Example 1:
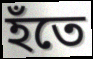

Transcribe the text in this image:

হঁতে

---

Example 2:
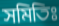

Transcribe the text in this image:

সমিতিঃ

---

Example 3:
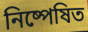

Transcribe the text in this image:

নিষ্পেষিত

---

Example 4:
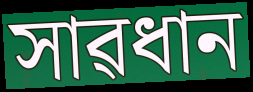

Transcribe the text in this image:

সাৱধান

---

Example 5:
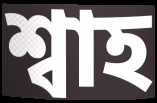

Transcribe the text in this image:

শ্বাহ